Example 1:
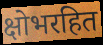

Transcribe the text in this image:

क्षोभरहित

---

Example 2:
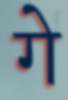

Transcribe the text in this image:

गे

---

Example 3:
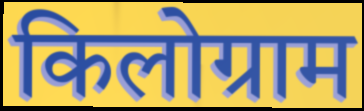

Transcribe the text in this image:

किलोग्राम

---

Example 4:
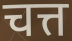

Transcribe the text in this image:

चत्त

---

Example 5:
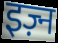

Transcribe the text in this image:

इज़्न